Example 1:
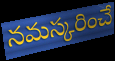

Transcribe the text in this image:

నమస్కరించే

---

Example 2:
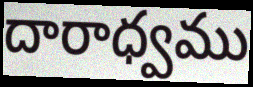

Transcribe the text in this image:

దారాధ్వము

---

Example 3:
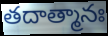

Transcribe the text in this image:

తదాత్మానః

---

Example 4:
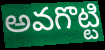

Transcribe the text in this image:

అవగొట్టి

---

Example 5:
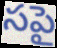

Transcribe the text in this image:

సపై